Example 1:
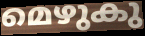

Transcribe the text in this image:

മെഴുകു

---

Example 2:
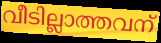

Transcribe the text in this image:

വീടില്ലാത്തവന്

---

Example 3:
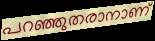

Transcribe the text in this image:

പറഞ്ഞുതരാനാണ്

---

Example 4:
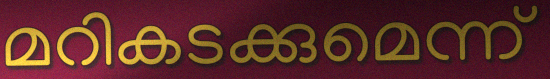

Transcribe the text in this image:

മറികടക്കുമെന്ന്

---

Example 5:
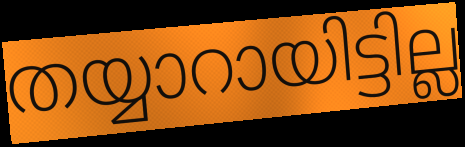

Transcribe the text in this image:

തയ്യാറായിട്ടില്ല